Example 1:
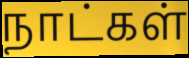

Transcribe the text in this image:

நாட்கள்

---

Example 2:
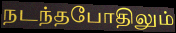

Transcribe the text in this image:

நடந்தபோதிலும்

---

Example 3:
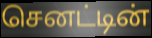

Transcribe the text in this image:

செனட்டின்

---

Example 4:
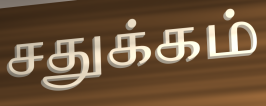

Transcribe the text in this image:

சதுக்கம்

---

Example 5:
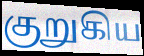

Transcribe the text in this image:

குறுகிய